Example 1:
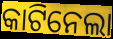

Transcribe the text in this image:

କାଟିନେଲା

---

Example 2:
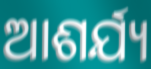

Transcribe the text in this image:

ଆଶର୍ଯ୍ୟ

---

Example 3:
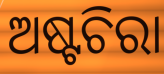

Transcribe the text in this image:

ଅଷ୍ଟଚିରା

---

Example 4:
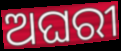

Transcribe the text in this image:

ଅଘରୀ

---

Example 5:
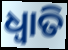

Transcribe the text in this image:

ଧ୍ବାତି